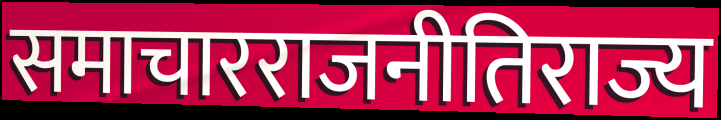
समाचारराजनीतिराज्य